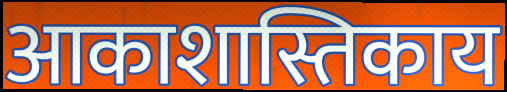
आकाशास्तिकाय